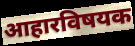
आहारविषयक